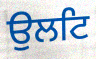
ਉਲਟਿ